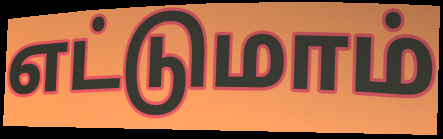
எட்டுமாம்